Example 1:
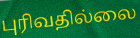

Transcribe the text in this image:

புரிவதில்லை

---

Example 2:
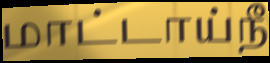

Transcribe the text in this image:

மாட்டாய்நீ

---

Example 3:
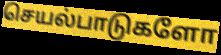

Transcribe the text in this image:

செயல்பாடுகளோ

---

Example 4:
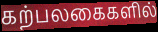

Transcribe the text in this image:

கற்பலகைகளில்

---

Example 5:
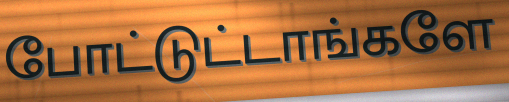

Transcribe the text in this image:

போட்டுட்டாங்களே